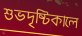
শুভদৃষ্টিকালে